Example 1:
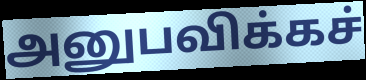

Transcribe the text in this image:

அனுபவிக்கச்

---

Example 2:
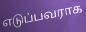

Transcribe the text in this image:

எடுப்பவராக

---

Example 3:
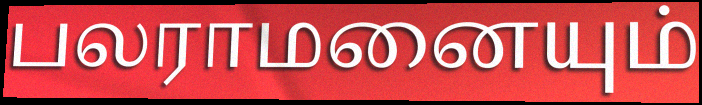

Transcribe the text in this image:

பலராமனையும்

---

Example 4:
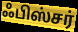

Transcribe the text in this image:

ஃபிஸ்சர்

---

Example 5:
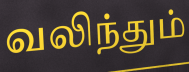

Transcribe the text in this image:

வலிந்தும்